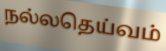
நல்லதெய்வம்